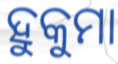
ହୁକୁମା